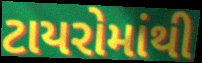
ટાયરોમાંથી